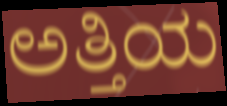
ಅತ್ತಿಯ